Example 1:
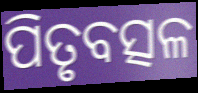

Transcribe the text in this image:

ପିତୃବତ୍ସଳ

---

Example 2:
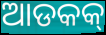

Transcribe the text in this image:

ଆଡକକ୍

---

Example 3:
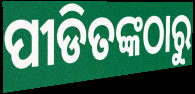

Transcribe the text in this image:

ପୀଡିତଙ୍କଠାରୁ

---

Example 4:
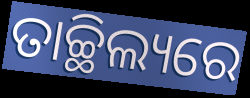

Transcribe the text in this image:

ତାଚ୍ଛିଲ୍ୟରେ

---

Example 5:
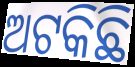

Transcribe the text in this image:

ଅଟକିଛି